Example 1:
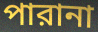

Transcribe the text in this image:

পারানা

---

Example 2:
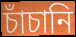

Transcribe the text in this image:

চাঁচানি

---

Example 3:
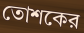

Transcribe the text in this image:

তোশকের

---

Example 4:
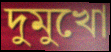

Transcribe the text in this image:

দুমুখো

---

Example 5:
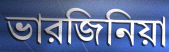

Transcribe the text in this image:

ভারজিনিয়া